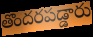
తొందరపడ్డారు